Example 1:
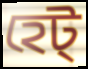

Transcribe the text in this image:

হেট্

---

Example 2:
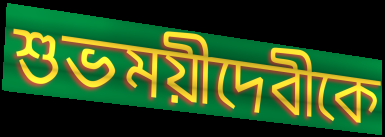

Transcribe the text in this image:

শুভময়ীদেবীকে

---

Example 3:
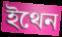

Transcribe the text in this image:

ইথেন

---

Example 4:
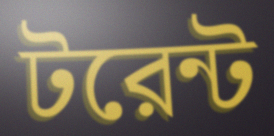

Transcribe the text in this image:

টরেন্ট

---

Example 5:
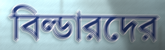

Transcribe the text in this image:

বিল্ডারদের